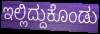
ಇಲ್ಲಿದ್ದುಕೊಂಡು